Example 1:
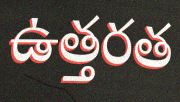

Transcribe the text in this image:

ఉత్తరత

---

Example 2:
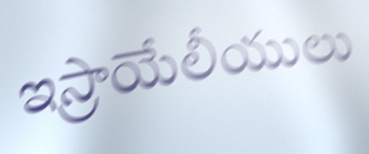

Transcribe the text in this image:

ఇస్రాయేలీయులు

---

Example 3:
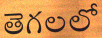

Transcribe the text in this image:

తెగలలో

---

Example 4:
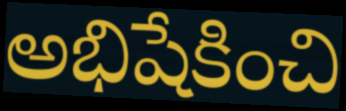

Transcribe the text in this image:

అభిషేకించి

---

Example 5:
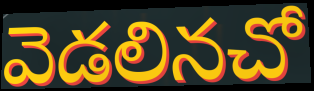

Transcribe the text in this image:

వెడలినచో